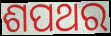
ଶପଥର